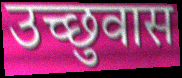
उच्छुवास